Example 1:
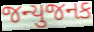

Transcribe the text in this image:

જન્યુજનક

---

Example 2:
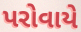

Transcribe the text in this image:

પરોવાયે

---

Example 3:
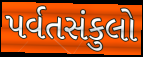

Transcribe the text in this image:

પર્વતસંકુલો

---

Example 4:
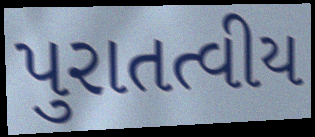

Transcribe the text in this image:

પુરાતત્વીય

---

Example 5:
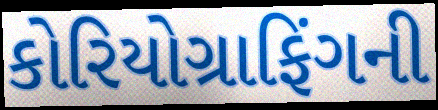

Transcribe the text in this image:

કોરિયોગ્રાફિંગની